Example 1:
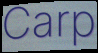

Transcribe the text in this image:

Carp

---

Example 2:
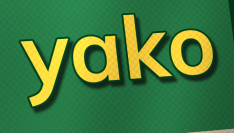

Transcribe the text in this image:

yako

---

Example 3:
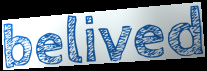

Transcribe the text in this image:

belived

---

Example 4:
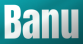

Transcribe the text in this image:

Banu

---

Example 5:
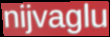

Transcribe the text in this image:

nijvaglu